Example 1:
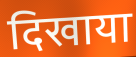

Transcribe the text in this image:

दिखाया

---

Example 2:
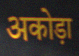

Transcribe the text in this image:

अकोड़ा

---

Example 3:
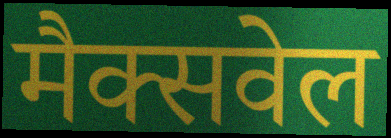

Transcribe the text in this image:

मैक्सवेल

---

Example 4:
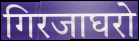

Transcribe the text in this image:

गिरजाघरो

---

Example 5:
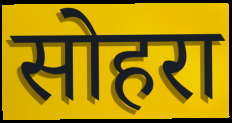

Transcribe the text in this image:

सोहरा